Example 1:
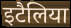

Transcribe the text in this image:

इटैलिया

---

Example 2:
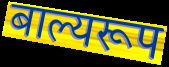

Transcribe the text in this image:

बाल्यरूप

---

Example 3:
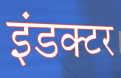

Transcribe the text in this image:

इंडक्टर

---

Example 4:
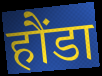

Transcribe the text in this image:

हौंडा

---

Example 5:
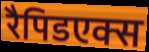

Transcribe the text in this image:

रैपिडएक्स